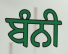
ਬੰਨੀ